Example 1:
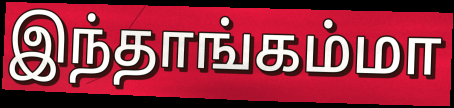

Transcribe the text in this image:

இந்தாங்கம்மா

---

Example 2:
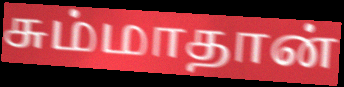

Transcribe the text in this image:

சும்மாதான்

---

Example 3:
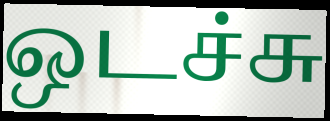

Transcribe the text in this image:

ஒடச்சு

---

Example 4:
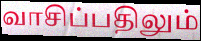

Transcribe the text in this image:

வாசிப்பதிலும்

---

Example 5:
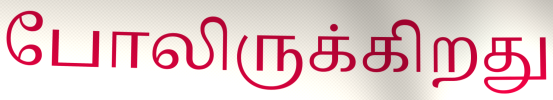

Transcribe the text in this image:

போலிருக்கிறது